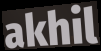
akhil